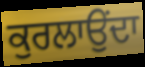
ਕੁਰਲਾਉਂਦਾ